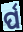
ର୍ପ